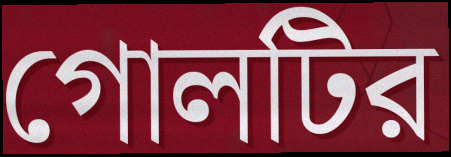
গোলটির